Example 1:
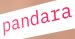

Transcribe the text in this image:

pandara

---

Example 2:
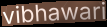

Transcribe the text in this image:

vibhawari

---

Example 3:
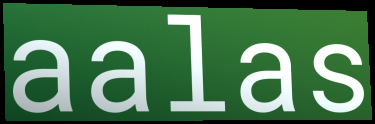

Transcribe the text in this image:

aalas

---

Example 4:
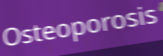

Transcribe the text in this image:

Osteoporosis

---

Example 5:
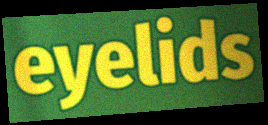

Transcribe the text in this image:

eyelids